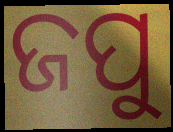
ଜପୁ